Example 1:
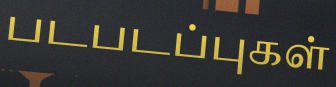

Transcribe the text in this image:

படபடப்புகள்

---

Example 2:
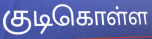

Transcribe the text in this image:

குடிகொள்ள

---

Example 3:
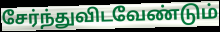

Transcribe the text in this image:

சேர்ந்துவிடவேண்டும்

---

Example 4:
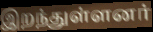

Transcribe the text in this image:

இறந்துள்ளனர்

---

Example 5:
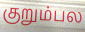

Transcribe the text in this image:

குறும்பல